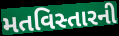
મતવિસ્તારની